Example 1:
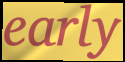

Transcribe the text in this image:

early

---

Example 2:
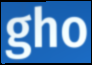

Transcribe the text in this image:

gho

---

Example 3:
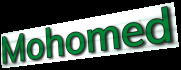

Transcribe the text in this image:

Mohomed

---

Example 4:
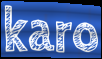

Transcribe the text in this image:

karo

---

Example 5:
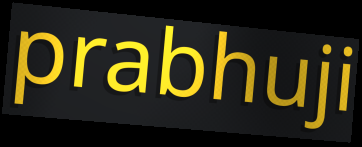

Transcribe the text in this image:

prabhuji